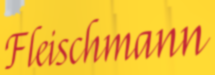
Fleischmann